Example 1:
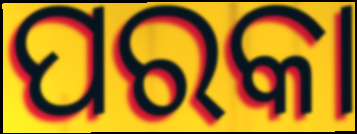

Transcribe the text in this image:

ପରକା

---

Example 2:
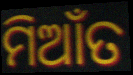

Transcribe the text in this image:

ମିଆଁତ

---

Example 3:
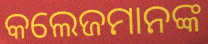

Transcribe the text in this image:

କଲେଜମାନଙ୍କ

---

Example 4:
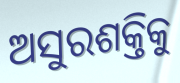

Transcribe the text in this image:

ଅସୁରଶକ୍ତିକୁ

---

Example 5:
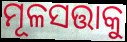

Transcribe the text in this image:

ମୂଳସତ୍ତାକୁ